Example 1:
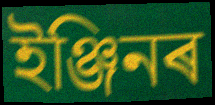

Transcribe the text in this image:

ইঞ্জিনৰ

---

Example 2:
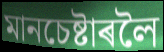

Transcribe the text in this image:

মানচেষ্টাৰলৈ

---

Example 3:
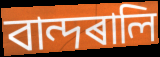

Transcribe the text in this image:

বান্দৰালি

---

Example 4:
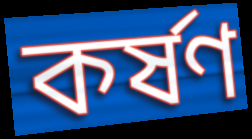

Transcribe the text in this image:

কৰ্ষণ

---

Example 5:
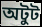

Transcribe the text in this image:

অটুট